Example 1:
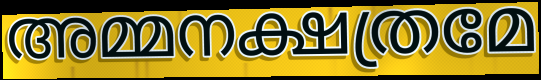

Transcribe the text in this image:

അമ്മനക്ഷത്രമേ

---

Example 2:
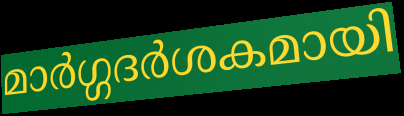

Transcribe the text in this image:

മാർഗ്ഗദർശകമായി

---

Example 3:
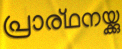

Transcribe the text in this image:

പ്രാര്ഥനയ്ക്കു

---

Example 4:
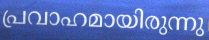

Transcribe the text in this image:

പ്രവാഹമായിരുന്നു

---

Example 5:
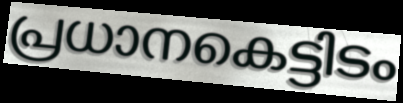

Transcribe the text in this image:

പ്രധാനകെട്ടിടം